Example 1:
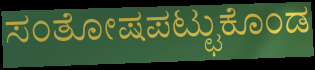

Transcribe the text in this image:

ಸಂತೋಷಪಟ್ಟುಕೊಂಡ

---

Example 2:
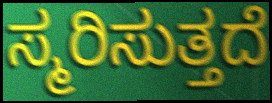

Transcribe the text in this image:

ಸ್ಮರಿಸುತ್ತದೆ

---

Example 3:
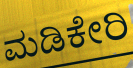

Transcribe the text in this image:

ಮಡಿಕೇರಿ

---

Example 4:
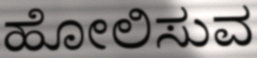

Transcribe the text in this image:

ಹೋಲಿಸುವ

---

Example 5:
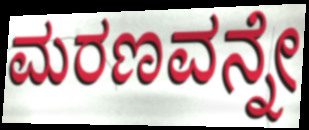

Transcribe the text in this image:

ಮರಣವನ್ನೇ